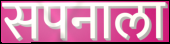
सपनाला